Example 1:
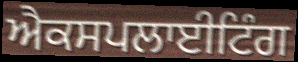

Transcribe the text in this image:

ਐਕਸਪਲਾਈਟਿੰਗ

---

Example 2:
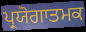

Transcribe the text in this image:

ਪ੍ਰਯੋਗਾਤਮਕ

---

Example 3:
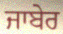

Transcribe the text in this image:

ਜਾਬੇਰ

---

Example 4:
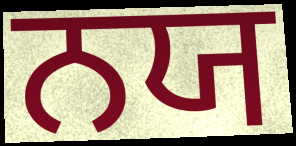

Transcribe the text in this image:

ਨਯ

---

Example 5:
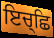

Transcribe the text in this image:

ਇਚ੍ਛਿ